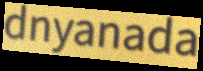
dnyanada